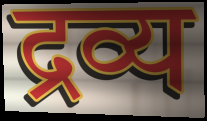
द्रव्य